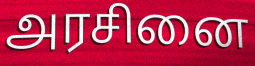
அரசினை